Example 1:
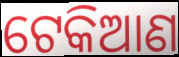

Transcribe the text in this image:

ଟେକିଆଣ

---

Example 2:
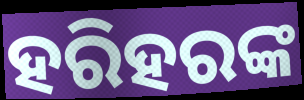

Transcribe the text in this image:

ହରିହରଙ୍କ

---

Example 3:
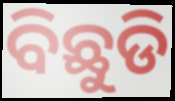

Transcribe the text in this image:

ବିଛୁଡି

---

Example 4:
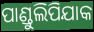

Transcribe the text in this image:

ପାଣ୍ଡୁଲିପିଯାକ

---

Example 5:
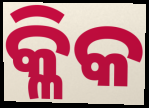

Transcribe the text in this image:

କ୍ଳିକ